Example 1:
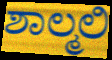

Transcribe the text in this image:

ಶಾಲ್ಮಲಿ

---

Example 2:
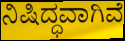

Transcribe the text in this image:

ನಿಷಿದ್ಧವಾಗಿವೆ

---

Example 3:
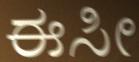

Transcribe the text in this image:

ಈಸೀ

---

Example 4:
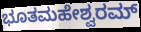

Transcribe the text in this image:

ಭೂತಮಹೇಶ್ವರಮ್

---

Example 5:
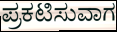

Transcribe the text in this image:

ಪ್ರಕಟಿಸುವಾಗ